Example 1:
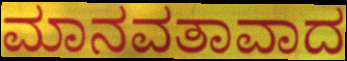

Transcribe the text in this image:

ಮಾನವತಾವಾದ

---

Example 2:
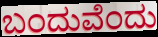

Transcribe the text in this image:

ಬಂದುವೆಂದು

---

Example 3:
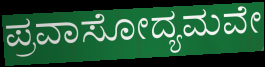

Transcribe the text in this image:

ಪ್ರವಾಸೋದ್ಯಮವೇ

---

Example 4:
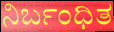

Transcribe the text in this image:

ನಿರ್ಬಂಧಿತ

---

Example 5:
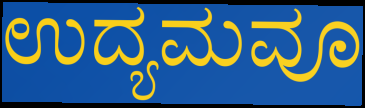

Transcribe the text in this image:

ಉದ್ಯಮವೂ